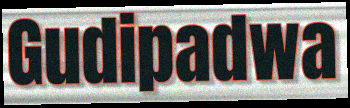
Gudipadwa